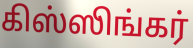
கிஸ்ஸிங்கர்